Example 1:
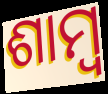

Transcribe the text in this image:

ଶାମ୍ୱ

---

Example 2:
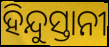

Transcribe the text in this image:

ହିନ୍ଦୁସ୍ତାନୀ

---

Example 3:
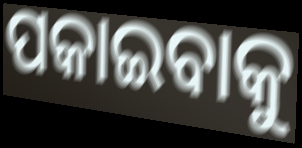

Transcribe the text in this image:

ପକାଇବାକୁ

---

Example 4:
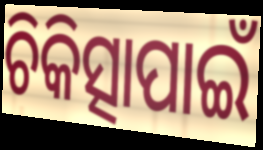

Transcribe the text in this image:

ଚିକିତ୍ସାପାଇଁ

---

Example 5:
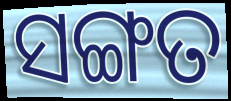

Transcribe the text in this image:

ସଙ୍ଗତ